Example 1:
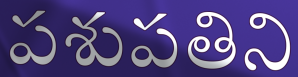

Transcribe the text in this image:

పశుపతిని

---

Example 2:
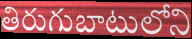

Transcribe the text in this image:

తిరుగుబాటులోని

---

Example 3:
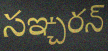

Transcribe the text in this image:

సఞ్చరన్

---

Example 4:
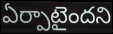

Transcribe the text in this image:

ఏర్పాటైందని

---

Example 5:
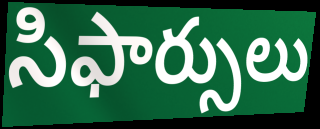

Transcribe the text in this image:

సిఫార్సులు